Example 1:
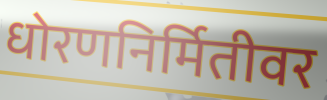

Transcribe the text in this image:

धोरणनिर्मितीवर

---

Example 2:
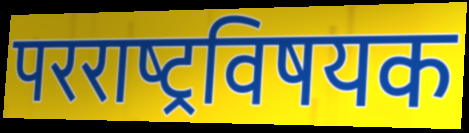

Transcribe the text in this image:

परराष्ट्रविषयक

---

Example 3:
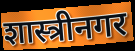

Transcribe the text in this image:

शास्त्रीनगर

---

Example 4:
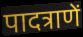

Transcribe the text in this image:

पादत्राणें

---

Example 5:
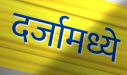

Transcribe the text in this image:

दर्जामध्ये